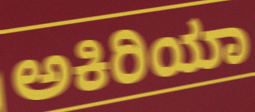
ಅಕಿರಿಯಾ